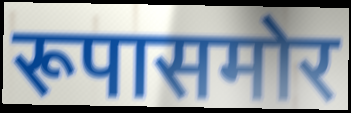
रूपासमोर